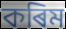
কৰিম